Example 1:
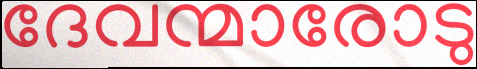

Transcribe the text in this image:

ദേവന്മാരോടു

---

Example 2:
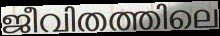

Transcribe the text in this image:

ജീവിതത്തിലെ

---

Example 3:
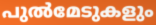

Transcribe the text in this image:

പുൽമേടുകളും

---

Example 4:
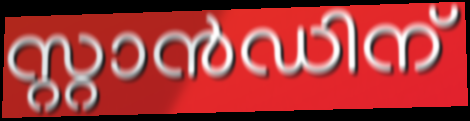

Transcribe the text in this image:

സ്റ്റാൻഡിന്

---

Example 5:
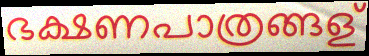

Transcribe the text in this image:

ഭക്ഷണപാത്രങ്ങള്